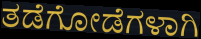
ತಡೆಗೋಡೆಗಳಾಗಿ